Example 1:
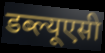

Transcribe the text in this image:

डब्ल्यूएसी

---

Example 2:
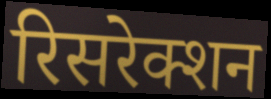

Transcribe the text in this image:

रिसरेक्शन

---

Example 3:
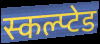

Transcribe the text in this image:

स्कल्प्टेड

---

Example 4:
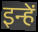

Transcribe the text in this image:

इन्‍हें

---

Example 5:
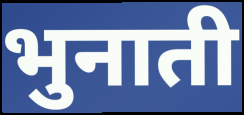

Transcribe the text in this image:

भुनाती